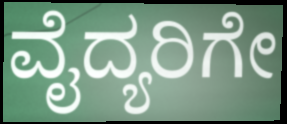
ವೈದ್ಯರಿಗೇ